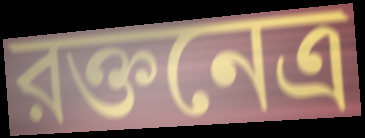
রক্তনেত্র